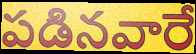
పడినవారే